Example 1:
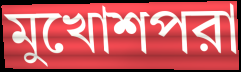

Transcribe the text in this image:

মুখোশপরা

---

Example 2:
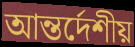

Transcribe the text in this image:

আন্তর্দেশীয়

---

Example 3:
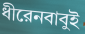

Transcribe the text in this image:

ধীরেনবাবুই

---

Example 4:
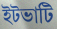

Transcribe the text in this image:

ইটভাটি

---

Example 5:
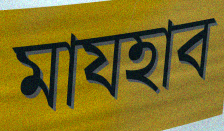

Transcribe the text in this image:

মাযহাব